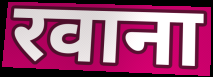
रवाना